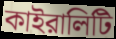
কাইরালিটি